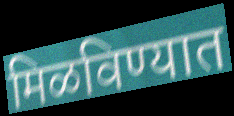
मिळविण्यात